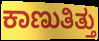
ಕಾಣುತಿತ್ತು